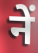
नें